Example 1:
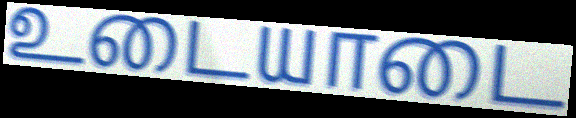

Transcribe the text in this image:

உடையாடை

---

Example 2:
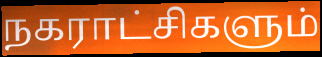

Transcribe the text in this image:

நகராட்சிகளும்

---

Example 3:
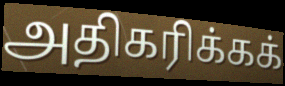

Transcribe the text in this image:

அதிகரிக்கக்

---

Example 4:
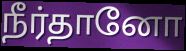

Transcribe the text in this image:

நீர்தானோ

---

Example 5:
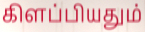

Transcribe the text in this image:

கிளப்பியதும்